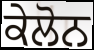
ਕੇਲੋਨ